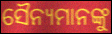
ସୈନ୍ୟମାନଙ୍କୁ